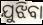
ଯୁଝିବା